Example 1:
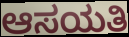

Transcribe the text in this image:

ಆಸಯತಿ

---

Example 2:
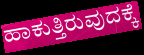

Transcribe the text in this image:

ಹಾಕುತ್ತಿರುವುದಕ್ಕೆ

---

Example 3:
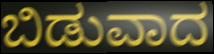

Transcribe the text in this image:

ಬಿಡುವಾದ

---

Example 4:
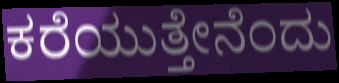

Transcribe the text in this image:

ಕರೆಯುತ್ತೇನೆಂದು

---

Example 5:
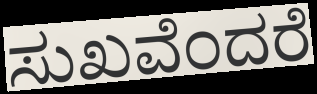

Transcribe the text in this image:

ಸುಖವೆಂದರೆ